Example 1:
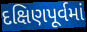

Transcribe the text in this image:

દક્ષિણપૂર્વમાં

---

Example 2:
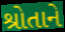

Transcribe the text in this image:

શ્રોતાને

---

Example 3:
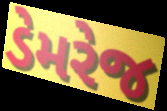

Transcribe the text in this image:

ડેમરેજ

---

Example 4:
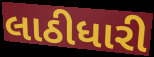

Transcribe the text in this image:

લાઠીધારી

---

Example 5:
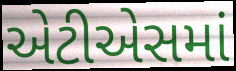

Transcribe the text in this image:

એટીએસમાં